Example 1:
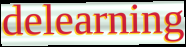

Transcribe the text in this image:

delearning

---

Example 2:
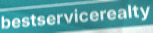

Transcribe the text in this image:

bestservicerealty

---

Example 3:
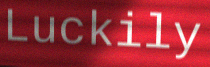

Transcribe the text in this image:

Luckily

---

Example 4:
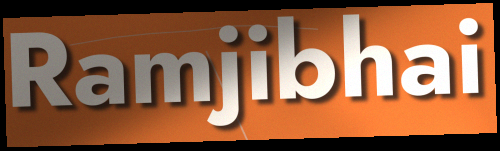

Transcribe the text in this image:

Ramjibhai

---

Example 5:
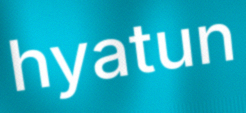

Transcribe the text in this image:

hyatun